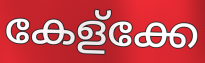
കേള്ക്കേ